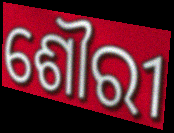
ଶୌରୀ